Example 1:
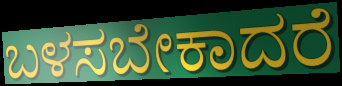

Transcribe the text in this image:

ಬಳಸಬೇಕಾದರೆ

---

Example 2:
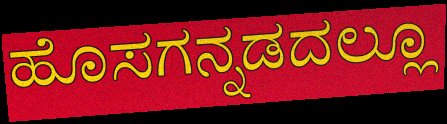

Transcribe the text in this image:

ಹೊಸಗನ್ನಡದಲ್ಲೂ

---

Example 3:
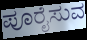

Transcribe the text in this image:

ಪೂರೈಸುವ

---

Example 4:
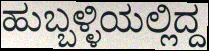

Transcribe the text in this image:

ಹುಬ್ಬಳ್ಳಿಯಲ್ಲಿದ್ದ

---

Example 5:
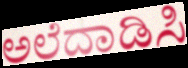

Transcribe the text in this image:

ಅಲೆದಾಡಿಸಿ